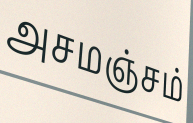
அசமஞ்சம்